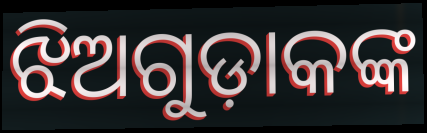
ଝିଅଗୁଡ଼ାକଙ୍କ